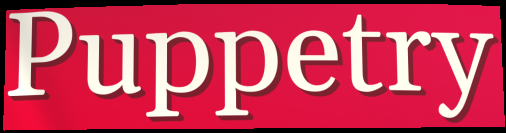
Puppetry